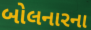
બોલનારના